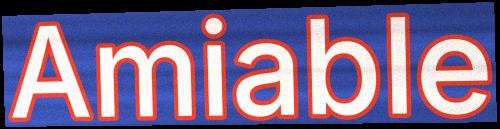
Amiable